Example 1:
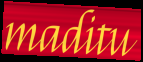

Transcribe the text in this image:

maditu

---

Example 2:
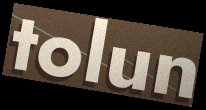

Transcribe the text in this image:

tolun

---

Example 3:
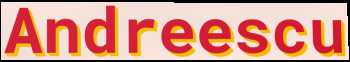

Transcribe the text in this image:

Andreescu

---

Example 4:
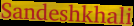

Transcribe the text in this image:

Sandeshkhali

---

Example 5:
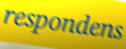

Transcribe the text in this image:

respondens